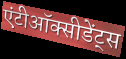
एंटीऑक्सीडेंट्स